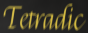
Tetradic